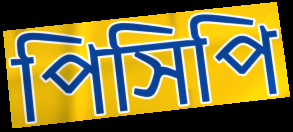
পিসিপি